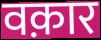
वक़ार